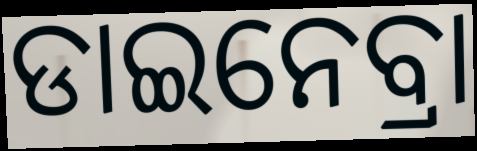
ଡାଇନେବ୍ରା